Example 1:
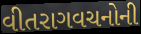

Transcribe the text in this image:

વીતરાગવચનોની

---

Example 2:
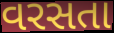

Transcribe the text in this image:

વરસતા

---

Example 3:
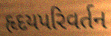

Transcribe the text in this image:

હૃદયપરિવર્તન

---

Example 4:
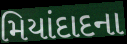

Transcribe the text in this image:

મિયાંદાદના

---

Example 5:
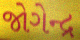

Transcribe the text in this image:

જોગેન્દ્ર